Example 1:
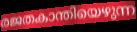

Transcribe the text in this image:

രജതകാന്തിയെഴുന്ന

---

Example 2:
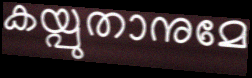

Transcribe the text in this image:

കയ്പുതാനുമേ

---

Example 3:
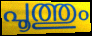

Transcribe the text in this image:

പൂത്തും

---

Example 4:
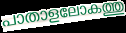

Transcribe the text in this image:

പാതാളലോകത്തു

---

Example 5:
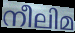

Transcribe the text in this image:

നീലിമ